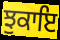
ਝੁਕਾਇ